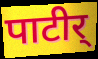
पाटीर्